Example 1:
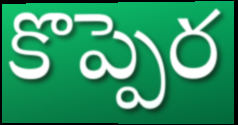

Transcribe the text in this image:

కొప్పెర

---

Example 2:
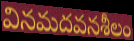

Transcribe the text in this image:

వినమదవనశీలం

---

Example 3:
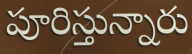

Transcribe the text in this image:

పూరిస్తున్నారు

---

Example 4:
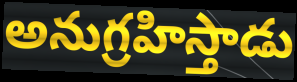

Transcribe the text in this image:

అనుగ్రహిస్తాడు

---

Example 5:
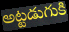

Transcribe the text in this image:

అట్టడుగుకి